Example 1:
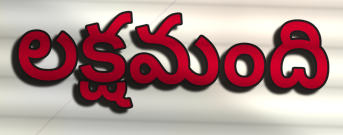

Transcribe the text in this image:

లక్షమంది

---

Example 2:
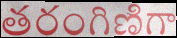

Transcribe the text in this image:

తరంగిణిగా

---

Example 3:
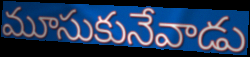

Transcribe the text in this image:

మూసుకునేవాడు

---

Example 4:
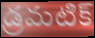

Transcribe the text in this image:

డ్రమటిక్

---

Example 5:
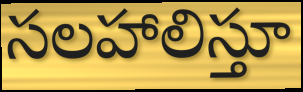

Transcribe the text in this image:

సలహాలిస్తూ